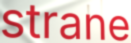
strane